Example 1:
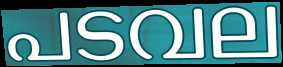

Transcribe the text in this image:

പടവല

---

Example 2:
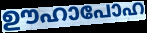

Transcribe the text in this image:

ഊഹാപോഹ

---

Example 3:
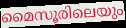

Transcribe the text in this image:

മൈസൂരിലെയും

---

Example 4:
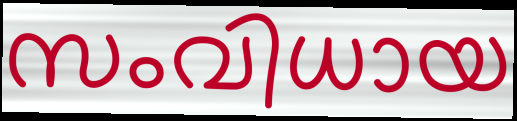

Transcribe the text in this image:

സംവിധായ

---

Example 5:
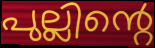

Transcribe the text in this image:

പുല്ലിന്റെ